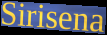
Sirisena